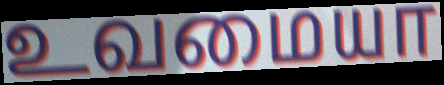
உவமையா